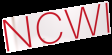
NCWI